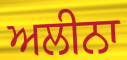
ਅਲੀਨਾ